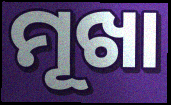
ମୂଖା